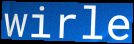
wirle